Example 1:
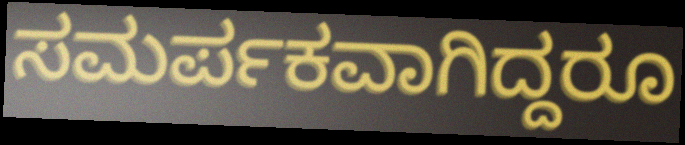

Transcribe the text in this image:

ಸಮರ್ಪಕವಾಗಿದ್ದರೂ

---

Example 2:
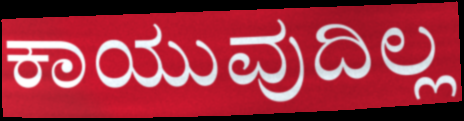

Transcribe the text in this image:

ಕಾಯುವುದಿಲ್ಲ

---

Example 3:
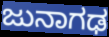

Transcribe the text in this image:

ಜುನಾಗಢ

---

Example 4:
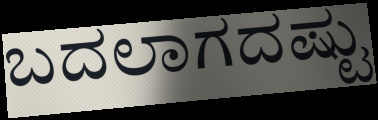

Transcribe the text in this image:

ಬದಲಾಗದಷ್ಟು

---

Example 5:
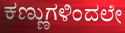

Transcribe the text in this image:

ಕಣ್ಣುಗಳಿಂದಲೇ